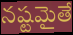
నష్టమైతే